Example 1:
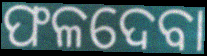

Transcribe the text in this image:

ଫଳଦେବା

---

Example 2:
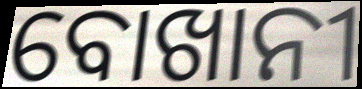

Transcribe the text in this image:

ବୋଖାନୀ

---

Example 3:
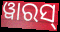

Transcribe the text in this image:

ୱାରସ୍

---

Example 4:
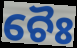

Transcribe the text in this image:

ଚୈଃ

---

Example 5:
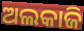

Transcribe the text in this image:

ଅଲକାଜି